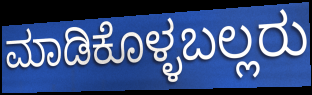
ಮಾಡಿಕೊಳ್ಳಬಲ್ಲರು